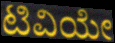
ಟಿವಿಯೇ